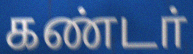
கண்டர்